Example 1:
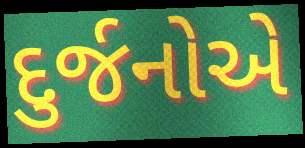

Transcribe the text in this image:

દુર્જનોએ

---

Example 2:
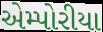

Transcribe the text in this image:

એમ્પોરીયા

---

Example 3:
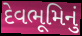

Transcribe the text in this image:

દેવભૂમિનું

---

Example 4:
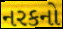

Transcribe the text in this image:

નરકનો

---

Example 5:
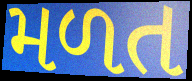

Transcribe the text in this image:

મળત